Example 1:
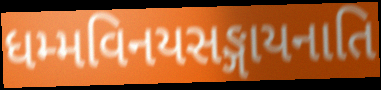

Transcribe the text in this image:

ધમ્મવિનયસઙ્ગાયનાતિ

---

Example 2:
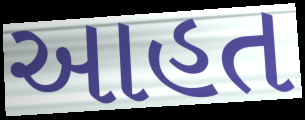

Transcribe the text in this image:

આહત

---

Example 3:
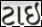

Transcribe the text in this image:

ટાઇ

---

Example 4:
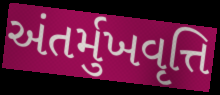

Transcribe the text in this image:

અંતર્મુખવૃત્તિ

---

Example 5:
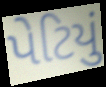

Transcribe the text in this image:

પેટિયું